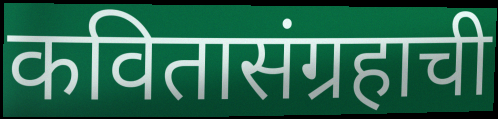
कवितासंग्रहाची